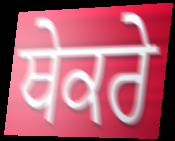
ਥੇਕਰੇ